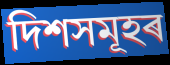
দিশসমূহৰ